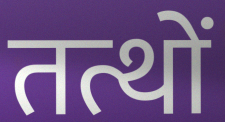
तत्थों